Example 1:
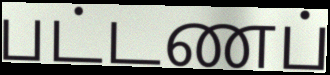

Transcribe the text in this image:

பட்டணப்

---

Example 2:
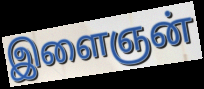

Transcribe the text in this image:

இளைஞன்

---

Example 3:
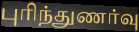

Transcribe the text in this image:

புரிந்துணர்வு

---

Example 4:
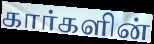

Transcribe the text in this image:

கார்களின்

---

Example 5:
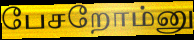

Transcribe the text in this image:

பேசறோம்னு